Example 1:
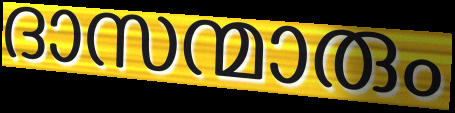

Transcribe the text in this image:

ദാസന്മാരും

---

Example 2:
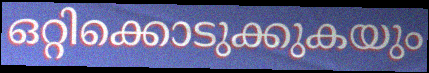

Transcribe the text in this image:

ഒറ്റിക്കൊടുക്കുകയും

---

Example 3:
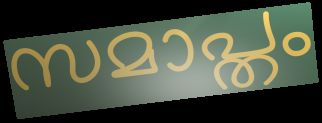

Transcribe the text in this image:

സമാപ്തം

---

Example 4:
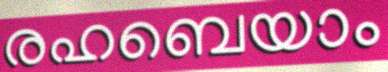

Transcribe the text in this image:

രഹബെയാം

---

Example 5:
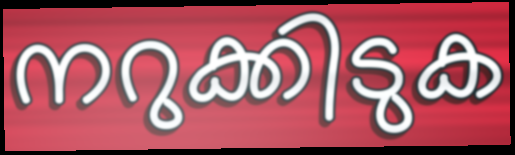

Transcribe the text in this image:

നറുക്കിടുക